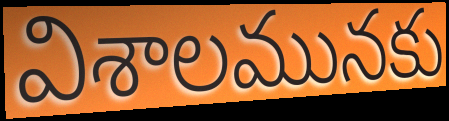
విశాలమునకు